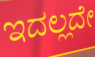
ಇದಲ್ಲದೇ